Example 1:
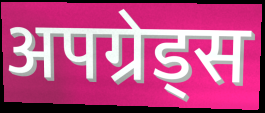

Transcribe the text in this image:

अपग्रेड्स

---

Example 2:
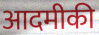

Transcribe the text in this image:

आदमीकी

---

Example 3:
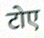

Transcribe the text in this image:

टोए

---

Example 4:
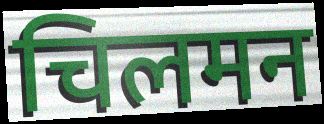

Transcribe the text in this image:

चिलमन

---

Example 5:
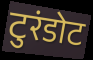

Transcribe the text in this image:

टुरंडोट